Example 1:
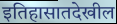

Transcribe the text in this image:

इतिहासातदेखील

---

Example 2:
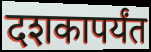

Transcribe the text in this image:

दशकापर्यंत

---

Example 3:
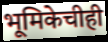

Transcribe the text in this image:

भूमिकेचीही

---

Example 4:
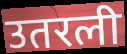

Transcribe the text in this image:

उतरली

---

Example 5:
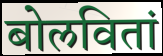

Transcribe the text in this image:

बोलवितां